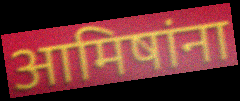
आमिषांना